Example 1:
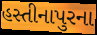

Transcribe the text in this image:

હસ્તીનાપુરના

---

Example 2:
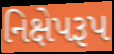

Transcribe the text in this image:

નિક્ષેપરૂપ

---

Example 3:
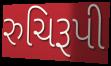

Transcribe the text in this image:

રુચિરૂપી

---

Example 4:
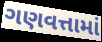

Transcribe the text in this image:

ગણવત્તામાં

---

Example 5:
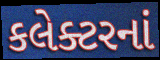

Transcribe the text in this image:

કલેક્ટરનાં